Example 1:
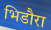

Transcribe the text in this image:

भिडौरा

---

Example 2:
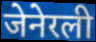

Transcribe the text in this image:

जेनेरली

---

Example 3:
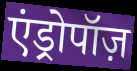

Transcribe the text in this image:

एंड्रोपॉज़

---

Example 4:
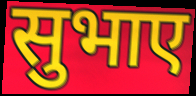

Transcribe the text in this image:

सुभाए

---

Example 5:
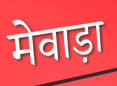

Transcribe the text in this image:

मेवाड़ा